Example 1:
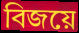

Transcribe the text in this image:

বিজয়ে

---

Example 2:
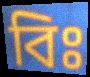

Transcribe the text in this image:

বিঃ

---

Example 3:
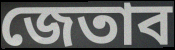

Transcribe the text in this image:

জেতাব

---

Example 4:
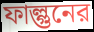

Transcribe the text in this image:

ফাল্গুনের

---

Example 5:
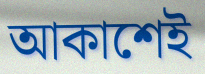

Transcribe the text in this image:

আকাশেই